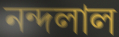
নন্দলাল